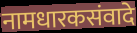
नामधारकसंवादे